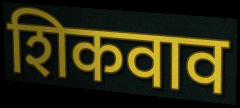
शिकवाव